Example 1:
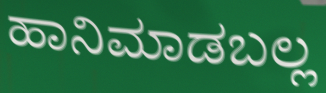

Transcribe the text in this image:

ಹಾನಿಮಾಡಬಲ್ಲ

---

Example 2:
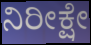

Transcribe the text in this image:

ನಿರೀಕ್ಷೇ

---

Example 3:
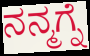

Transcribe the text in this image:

ನನ್ಮಗ್ನೆ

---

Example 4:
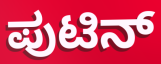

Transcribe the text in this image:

ಪುಟಿನ್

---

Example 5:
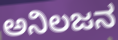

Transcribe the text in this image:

ಅನಿಲಜನ